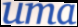
uma